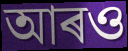
আৰও